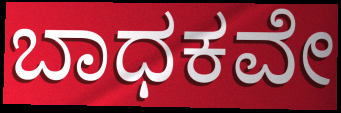
ಬಾಧಕವೇ